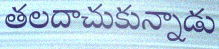
తలదాచుకున్నాడు